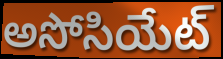
అసోసియేట్